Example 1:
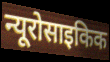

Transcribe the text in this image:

न्यूरोसाइकिक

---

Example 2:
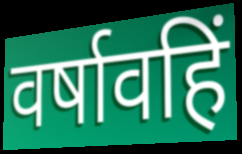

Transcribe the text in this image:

वर्षावहिं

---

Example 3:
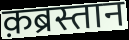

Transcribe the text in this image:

क़ब्रस्तान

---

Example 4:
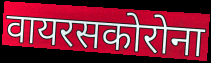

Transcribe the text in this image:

वायरसकोरोना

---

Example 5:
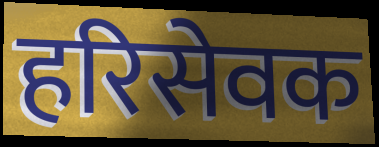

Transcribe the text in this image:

हरिसेवक